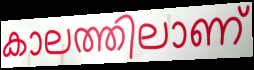
കാലത്തിലാണ്